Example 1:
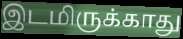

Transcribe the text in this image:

இடமிருக்காது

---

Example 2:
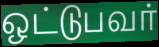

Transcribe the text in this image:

ஒட்டுபவர்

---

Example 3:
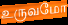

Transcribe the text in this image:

உருவமோ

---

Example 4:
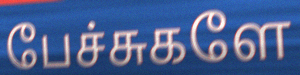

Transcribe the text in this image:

பேச்சுகளே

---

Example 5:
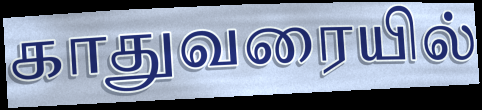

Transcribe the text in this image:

காதுவரையில்